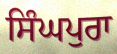
ਸਿੰਘਪੁਰਾ